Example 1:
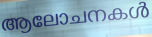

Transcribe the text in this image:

ആലോചനകൾ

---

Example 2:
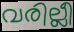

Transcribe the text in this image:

വരില്ലീ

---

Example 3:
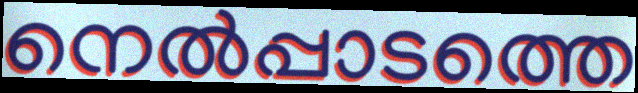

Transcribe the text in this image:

നെൽപ്പാടത്തെ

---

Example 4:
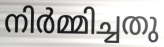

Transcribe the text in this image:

നിർമ്മിച്ചതു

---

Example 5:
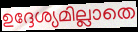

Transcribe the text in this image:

ഉദ്ദേശ്യമില്ലാതെ